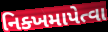
નિક્ખમાપેત્વા